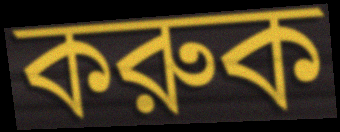
করুক